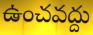
ఉంచవద్దు